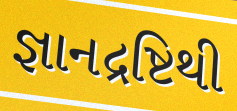
જ્ઞાનદ્રષ્ટિથી